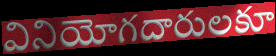
వినియోగదారులకూ